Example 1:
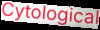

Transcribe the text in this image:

Cytological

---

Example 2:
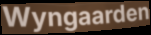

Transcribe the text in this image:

Wyngaarden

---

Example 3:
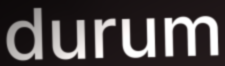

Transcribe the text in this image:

durum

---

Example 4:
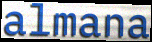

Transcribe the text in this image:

almana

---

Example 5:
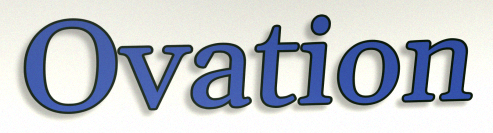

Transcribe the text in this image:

Ovation